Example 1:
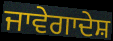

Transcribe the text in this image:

ਜਾਵੇਗਾਦੇਸ਼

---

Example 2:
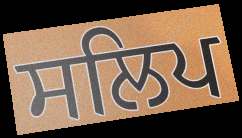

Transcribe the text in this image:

ਸਲਿਪ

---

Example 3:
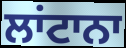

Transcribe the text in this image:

ਲਾਂਟਾਨਾ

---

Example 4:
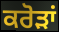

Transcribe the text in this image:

ਕਰੋਡ਼ਾਂ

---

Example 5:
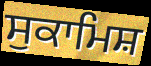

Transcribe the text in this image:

ਸੁਕਾਮਿਸ਼